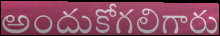
అందుకోగలిగారు